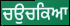
ਚਉਚਕਿਆ